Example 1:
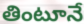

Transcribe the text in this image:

తింటూనే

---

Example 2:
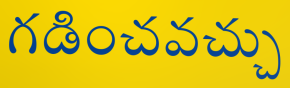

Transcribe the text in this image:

గడించవచ్చు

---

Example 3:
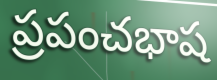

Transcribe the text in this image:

ప్రపంచభాష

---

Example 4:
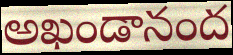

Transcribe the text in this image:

అఖండానంద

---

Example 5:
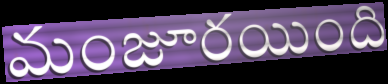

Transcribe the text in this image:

మంజూరయింది